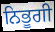
ਨਿਭੂਗੀ